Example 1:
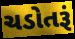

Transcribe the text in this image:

ચડોતરૂં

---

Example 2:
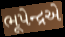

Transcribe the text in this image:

ભૂપેન્દ્રએ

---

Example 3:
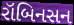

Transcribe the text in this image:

રૉબિનસન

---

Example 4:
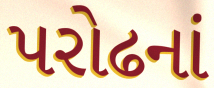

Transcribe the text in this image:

પરોઢનાં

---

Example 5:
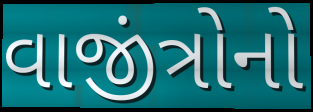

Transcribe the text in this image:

વાજીંત્રોનો